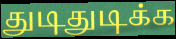
துடிதுடிக்க